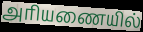
அரியணையில்